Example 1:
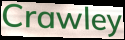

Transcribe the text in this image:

Crawley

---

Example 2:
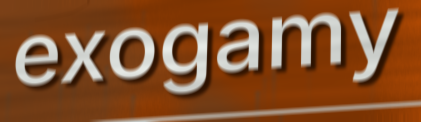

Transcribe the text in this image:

exogamy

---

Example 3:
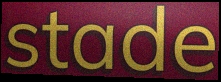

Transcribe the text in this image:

stade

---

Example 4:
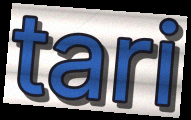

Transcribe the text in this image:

tari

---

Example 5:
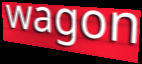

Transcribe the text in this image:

wagon